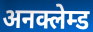
अनक्लेम्ड